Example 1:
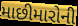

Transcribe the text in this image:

માછીમારોની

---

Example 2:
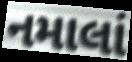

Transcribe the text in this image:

નમાલાં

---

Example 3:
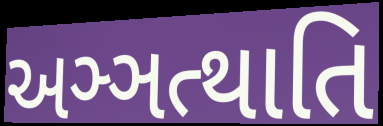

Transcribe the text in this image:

અઞ્ઞત્થાતિ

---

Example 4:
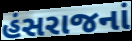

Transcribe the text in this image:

હંસરાજનાં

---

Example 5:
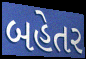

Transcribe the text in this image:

બહેતર